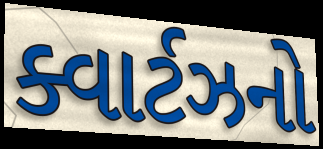
ક્વાર્ટઝનો